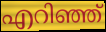
എറിഞ്ഞ്